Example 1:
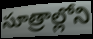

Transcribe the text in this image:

సూత్రాల్లోని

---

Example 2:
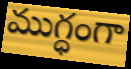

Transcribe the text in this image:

ముగ్ధంగా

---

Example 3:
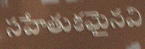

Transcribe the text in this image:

సహేతుకమైనవి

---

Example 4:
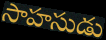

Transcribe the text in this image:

సాహసుడు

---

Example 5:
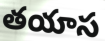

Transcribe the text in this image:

తయాస